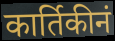
कार्तिकीनं